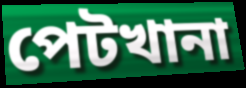
পেটখানা